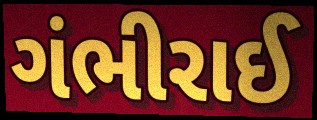
ગંભીરાઈ